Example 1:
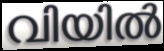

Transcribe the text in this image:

വിയിൽ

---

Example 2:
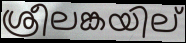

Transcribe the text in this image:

ശ്രീലങ്കയില്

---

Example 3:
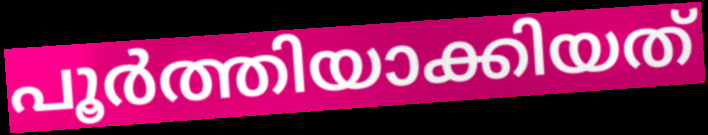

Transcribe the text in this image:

പൂർത്തിയാക്കിയത്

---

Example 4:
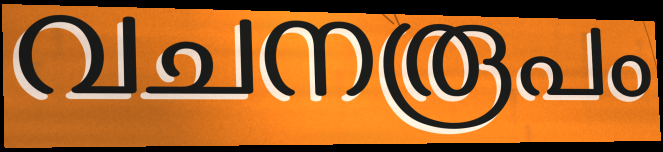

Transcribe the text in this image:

വചനരൂപം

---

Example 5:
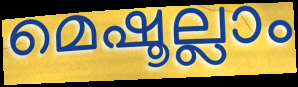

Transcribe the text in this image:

മെഷൂല്ലാം